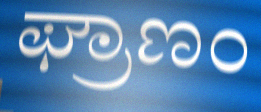
ಘ್ರಾಣಂ